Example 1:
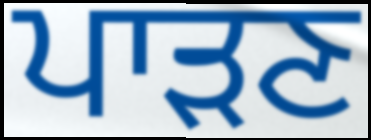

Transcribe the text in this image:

ਪਾੜਣ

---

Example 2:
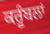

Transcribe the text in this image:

ਕਰੂੰਬਲਾਂ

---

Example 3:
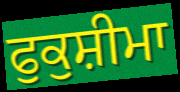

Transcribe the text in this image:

ਫੁਕੁਸ਼ੀਮਾ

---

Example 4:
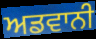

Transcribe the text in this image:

ਅਡਵਾਨੀ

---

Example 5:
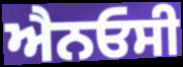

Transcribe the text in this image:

ਐਨਓਸੀ